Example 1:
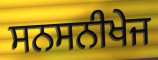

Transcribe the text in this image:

ਸਨਸਨੀਖੇਜ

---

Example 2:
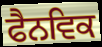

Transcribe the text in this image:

ਫੈਨਵਿਕ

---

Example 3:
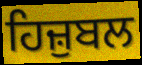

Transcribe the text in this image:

ਹਿਜ਼ੁਬਲ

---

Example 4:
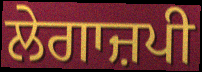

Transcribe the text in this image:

ਲੇਗਾਜ਼ਪੀ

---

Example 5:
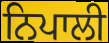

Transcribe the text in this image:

ਨਿਪਾਲੀ